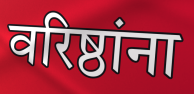
वरिष्ठांना